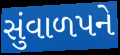
સુંવાળપને